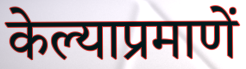
केल्याप्रमाणें